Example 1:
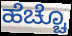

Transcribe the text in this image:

ಹೆಚ್ಚೊ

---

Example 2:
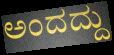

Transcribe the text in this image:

ಅಂದದ್ದು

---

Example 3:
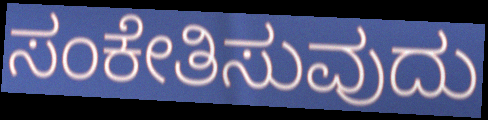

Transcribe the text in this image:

ಸಂಕೇತಿಸುವುದು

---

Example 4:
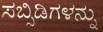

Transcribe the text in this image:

ಸಬ್ಸಿಡಿಗಳನ್ನು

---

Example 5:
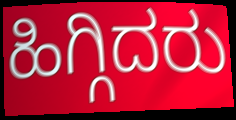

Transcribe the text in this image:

ಹಿಗ್ಗಿದರು